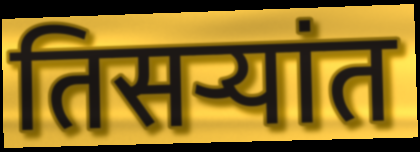
तिसर्‍यांत